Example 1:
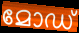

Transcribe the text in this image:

മോഡ്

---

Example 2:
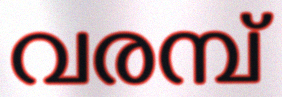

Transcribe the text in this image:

വരമ്പ്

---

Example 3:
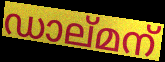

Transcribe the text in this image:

ഡാല്മന്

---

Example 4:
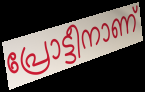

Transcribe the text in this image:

പ്രോട്ടീനാണ്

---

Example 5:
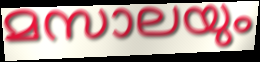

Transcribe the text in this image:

മസാലയും